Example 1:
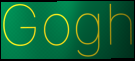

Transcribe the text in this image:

Gogh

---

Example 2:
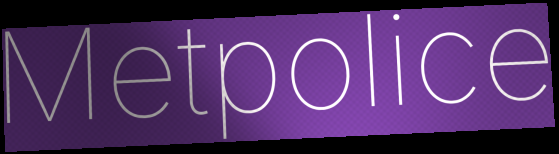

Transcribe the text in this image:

Metpolice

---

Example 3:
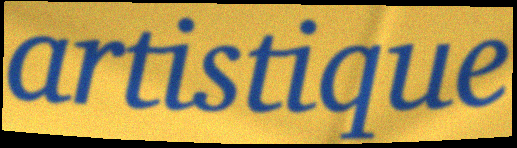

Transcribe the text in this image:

artistique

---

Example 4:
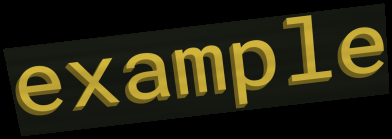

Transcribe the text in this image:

example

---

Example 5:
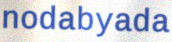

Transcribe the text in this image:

nodabyada